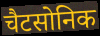
चैटसोनिक